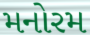
મનોરમ